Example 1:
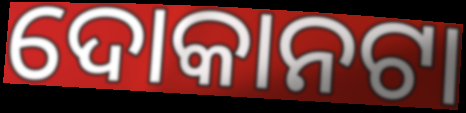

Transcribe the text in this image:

ଦୋକାନଟା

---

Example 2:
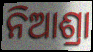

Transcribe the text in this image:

ନିଆଶ୍ରା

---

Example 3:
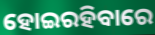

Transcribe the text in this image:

ହୋଇରହିବାରେ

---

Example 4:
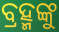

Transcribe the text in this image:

ବ୍ରହ୍ମଙ୍କୁ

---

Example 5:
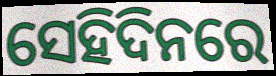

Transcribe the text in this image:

ସେହିଦିନରେ